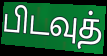
பிடவுத்